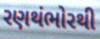
રણથંભોરથી